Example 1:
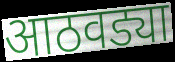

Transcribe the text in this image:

आठवड्या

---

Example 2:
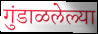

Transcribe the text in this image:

गुंडाळलेल्या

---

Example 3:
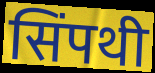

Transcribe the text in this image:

सिंपथी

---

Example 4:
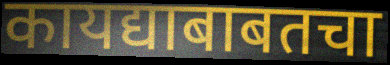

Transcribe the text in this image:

कायद्याबाबतचा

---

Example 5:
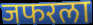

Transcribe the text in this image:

जफरला